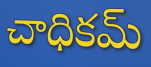
చాధికమ్